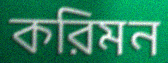
করিমন